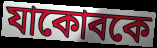
যাকোবকে